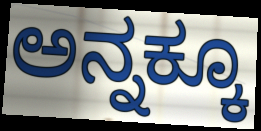
ಅನ್ನಕ್ಕೂ